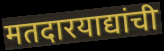
मतदारयाद्यांची